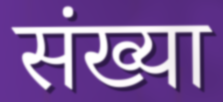
संख्या